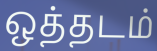
ஒத்தடம்